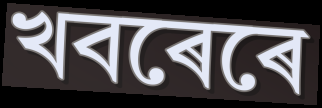
খবৰেৰে